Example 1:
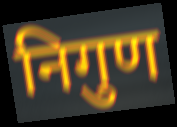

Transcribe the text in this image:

निगुण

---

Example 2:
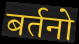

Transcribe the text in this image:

बर्तनो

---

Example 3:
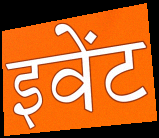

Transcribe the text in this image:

इवेंट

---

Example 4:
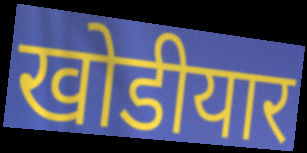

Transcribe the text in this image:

खोडीयार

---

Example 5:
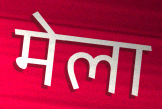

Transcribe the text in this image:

मेला